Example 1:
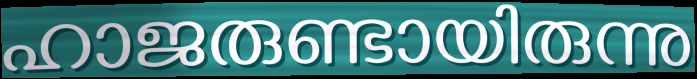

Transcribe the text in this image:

ഹാജരുണ്ടായിരുന്നു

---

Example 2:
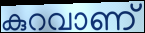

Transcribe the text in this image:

കുറവാണ്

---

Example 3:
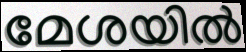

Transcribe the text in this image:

മേശയിൽ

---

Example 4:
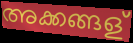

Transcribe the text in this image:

അക്കങ്ങള്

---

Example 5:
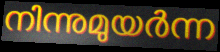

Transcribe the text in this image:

നിന്നുമുയർന്ന